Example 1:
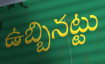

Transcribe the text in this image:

ఉబ్బినట్టు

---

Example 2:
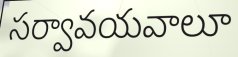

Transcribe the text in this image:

సర్వావయవాలూ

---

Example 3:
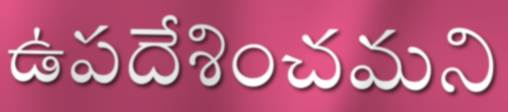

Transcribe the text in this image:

ఉపదేశించమని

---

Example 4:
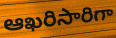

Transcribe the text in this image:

ఆఖరిసారిగా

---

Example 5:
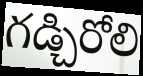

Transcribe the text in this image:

గడ్చిరోలి